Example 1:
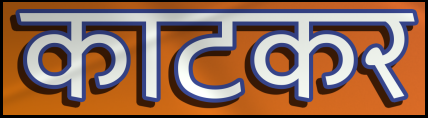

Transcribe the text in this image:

काटकर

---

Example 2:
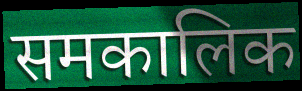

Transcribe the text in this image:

समकालिक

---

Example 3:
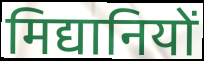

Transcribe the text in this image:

मिद्यानियों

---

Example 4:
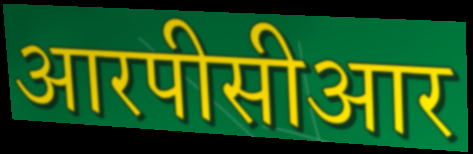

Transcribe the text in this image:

आरपीसीआर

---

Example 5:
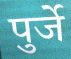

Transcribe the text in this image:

पुर्जे